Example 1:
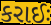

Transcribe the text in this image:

કરાઈઃ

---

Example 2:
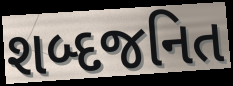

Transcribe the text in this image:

શબ્દજનિત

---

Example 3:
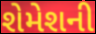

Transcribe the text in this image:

શેમેશની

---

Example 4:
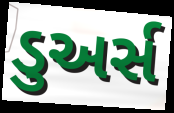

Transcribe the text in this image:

ડુઅર્સ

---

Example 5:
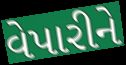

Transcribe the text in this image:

વેપારીને